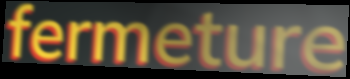
fermeture